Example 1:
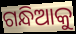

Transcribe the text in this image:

ଗନ୍ଧିଆକୁ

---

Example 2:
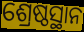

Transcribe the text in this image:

ଶ୍ରେଷ୍ଠସ୍ଥାନ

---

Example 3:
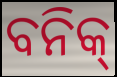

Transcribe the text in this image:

ବନିକ୍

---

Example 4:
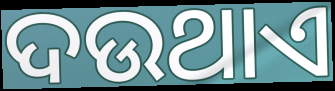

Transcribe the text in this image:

ଦଉଥାଏ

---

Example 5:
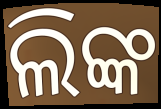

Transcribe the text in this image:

ଲିଙ୍କ